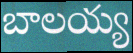
బాలయ్య